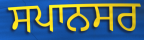
ਸਪਾਨਸਰ